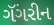
ગૅંગરીન